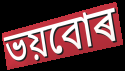
ভয়বোৰ